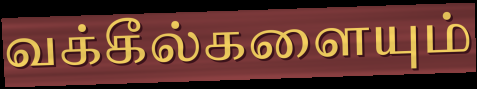
வக்கீல்களையும்